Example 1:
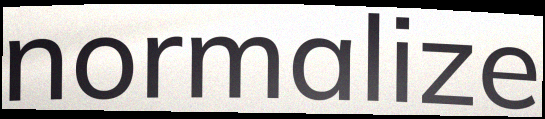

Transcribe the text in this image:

normalize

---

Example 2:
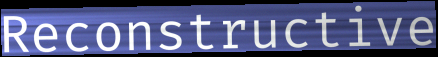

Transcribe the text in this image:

Reconstructive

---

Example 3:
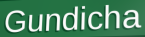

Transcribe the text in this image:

Gundicha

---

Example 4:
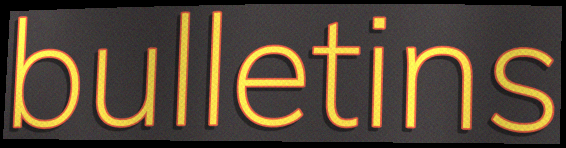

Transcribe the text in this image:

bulletins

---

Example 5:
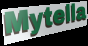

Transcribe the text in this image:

Mytella